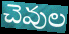
చెవుల